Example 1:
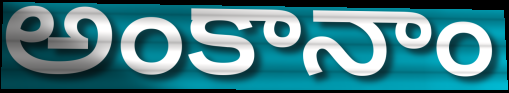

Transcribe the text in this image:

అంకానాం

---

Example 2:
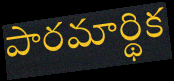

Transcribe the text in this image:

పారమార్థిక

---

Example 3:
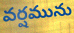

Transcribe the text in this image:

వర్షమును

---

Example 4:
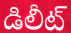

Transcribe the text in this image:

డిలీట్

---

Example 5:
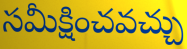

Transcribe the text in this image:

సమీక్షించవచ్చు